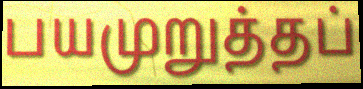
பயமுறுத்தப்